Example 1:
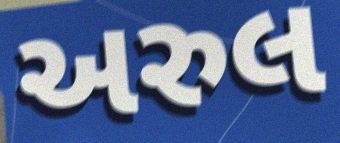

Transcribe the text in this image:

અરુલ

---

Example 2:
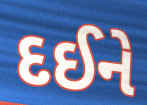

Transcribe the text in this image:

દઈને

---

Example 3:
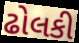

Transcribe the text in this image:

ઢોલકી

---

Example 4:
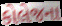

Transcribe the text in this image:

કોલેજના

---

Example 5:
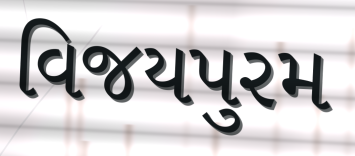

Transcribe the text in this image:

વિજયપુરમ